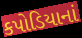
કપોડિયાનાં